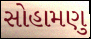
સોહામણુ